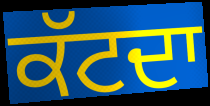
ਕੱਟਦਾ